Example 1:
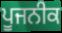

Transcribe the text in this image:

ਪੂਜਨੀਕ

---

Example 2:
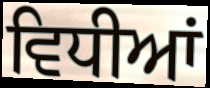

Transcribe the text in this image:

ਵਿਧੀਆਂ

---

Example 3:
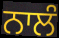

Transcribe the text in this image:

ਨਾਲੰ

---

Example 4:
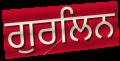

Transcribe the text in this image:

ਗੁਰਲਿਨ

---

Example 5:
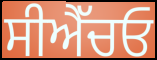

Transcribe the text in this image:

ਸੀਐੱਚਓ